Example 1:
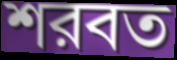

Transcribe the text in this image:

শরবত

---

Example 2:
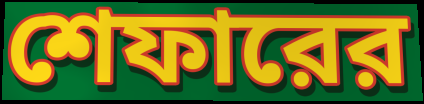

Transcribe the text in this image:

শেফারের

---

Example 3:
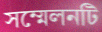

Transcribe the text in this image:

সম্মেলনটি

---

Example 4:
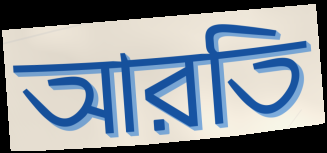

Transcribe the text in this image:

আরতি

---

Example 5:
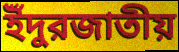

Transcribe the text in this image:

ইঁদুরজাতীয়